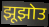
झूझोउ